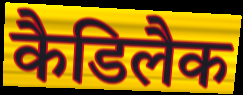
कैडिलैक